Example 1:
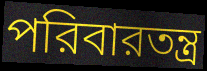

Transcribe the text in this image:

পরিবারতন্ত্র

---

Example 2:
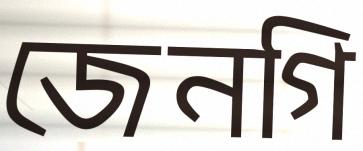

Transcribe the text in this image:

জেনগি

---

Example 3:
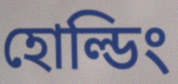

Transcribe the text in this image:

হোল্ডিং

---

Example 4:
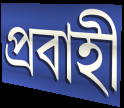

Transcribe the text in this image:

প্রবাহী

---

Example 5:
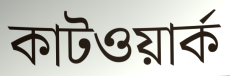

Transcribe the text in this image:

কাটওয়ার্ক